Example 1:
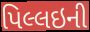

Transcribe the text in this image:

પિલ્લઇની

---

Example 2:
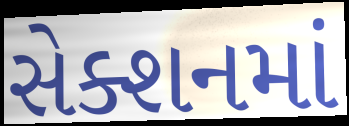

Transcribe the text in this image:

સેક્શનમાં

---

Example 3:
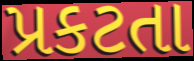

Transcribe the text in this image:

પ્રકટતા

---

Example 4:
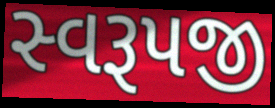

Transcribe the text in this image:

સ્વરૂપજી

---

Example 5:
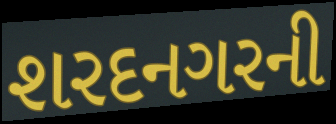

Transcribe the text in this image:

શરદનગરની